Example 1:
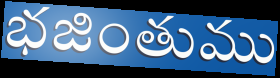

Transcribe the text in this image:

భజింతుము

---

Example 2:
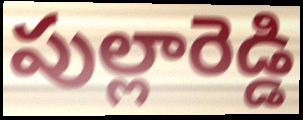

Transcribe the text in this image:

పుల్లారెడ్డి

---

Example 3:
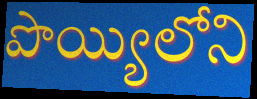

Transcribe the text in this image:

పొయ్యిలోని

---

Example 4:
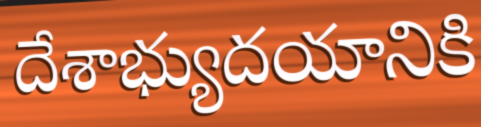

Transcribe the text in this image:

దేశాభ్యుదయానికి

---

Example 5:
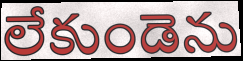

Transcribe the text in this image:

లేకుండెను